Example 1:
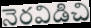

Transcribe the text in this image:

నెరవిడిచి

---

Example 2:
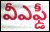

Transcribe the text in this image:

వీఎఫ్డీ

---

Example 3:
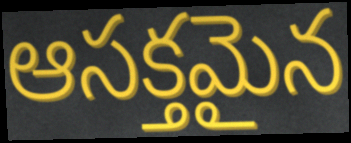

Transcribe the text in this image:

ఆసక్తమైన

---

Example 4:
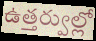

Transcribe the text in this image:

ఉత్తర్వుల్లో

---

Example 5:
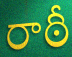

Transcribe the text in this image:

రాఠీ